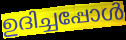
ഉദിച്ചപ്പോൾ